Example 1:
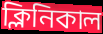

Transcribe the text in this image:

ক্লিনিকাল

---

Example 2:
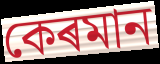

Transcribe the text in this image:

কেৰমান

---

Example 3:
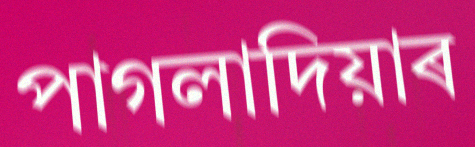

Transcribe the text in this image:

পাগলাদিয়াৰ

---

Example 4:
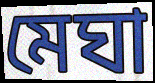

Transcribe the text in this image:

মেঘা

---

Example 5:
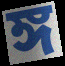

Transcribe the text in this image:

ঙ্গ